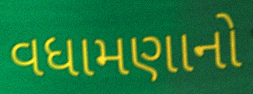
વધામણાનો